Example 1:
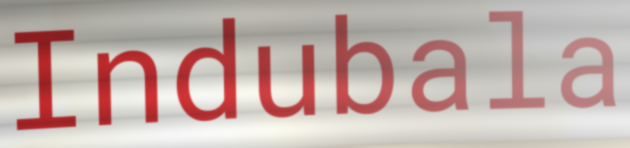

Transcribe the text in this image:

Indubala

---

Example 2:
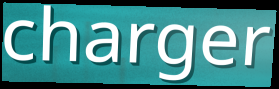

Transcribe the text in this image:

charger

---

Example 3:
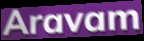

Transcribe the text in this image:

Aravam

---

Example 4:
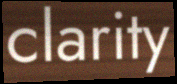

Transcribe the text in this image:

clarity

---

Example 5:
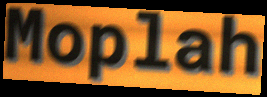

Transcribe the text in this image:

Moplah